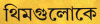
থিমগুলোকে